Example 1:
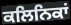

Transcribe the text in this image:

ਕਲਿਨਿਕਾਂ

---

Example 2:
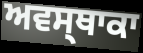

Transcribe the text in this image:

ਅਵਸ੍ਥਾਕਾ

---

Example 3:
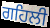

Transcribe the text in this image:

ਗਹਿਲੀ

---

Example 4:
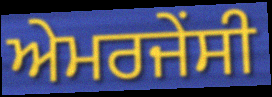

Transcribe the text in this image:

ਅੇਮਰਜੇਂਸੀ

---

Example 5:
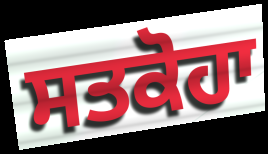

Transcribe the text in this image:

ਸਤਕੋਹਾ